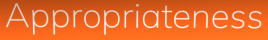
Appropriateness